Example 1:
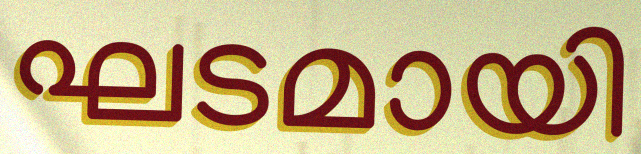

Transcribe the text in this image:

ഘടമായി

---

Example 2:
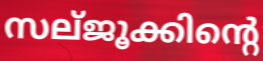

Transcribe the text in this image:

സല്ജൂക്കിന്റെ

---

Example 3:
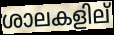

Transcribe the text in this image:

ശാലകളില്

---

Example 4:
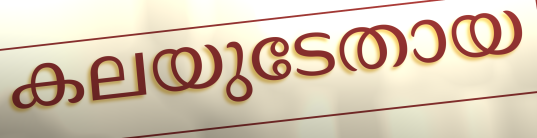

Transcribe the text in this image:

കലയുടേതായ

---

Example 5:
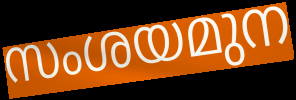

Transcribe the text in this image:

സംശയമുന